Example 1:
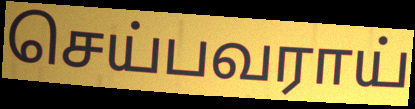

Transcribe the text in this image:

செய்பவராய்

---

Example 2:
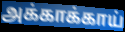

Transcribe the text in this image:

அக்காக்காய்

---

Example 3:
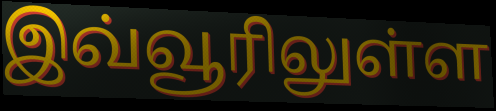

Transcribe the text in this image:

இவ்வூரிலுள்ள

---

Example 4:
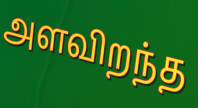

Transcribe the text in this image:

அளவிறந்த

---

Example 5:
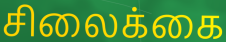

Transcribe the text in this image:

சிலைக்கை